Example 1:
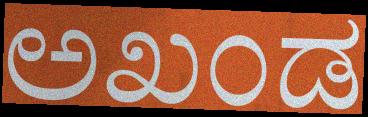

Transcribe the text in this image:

ಅಖಂಡ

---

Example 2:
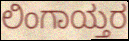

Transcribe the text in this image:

ಲಿಂಗಾಯ್ತರ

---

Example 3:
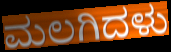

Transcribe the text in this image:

ಮಲಗಿದಳು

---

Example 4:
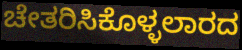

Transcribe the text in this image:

ಚೇತರಿಸಿಕೊಳ್ಳಲಾರದ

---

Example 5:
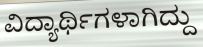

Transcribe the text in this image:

ವಿದ್ಯಾರ್ಥಿಗಳಾಗಿದ್ದು